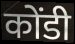
कोंडी